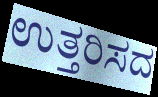
ಉತ್ತರಿಸದ